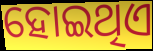
ହୋଇଥିଏ